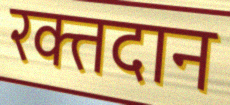
रक्तदान